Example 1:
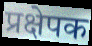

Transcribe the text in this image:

प्रक्षेपक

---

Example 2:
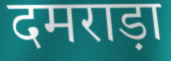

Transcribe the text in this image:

दमराड़ा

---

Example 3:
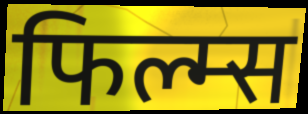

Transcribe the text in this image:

फिल्म्स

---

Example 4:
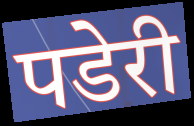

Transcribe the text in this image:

पडेरी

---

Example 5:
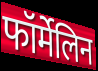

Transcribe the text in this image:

फॉर्मेलिन